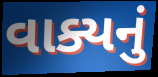
વાક્યનું